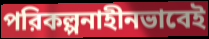
পরিকল্পনাহীনভাবেই